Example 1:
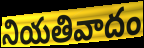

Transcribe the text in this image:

నియతివాదం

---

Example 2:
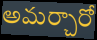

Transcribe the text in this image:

అమర్చారో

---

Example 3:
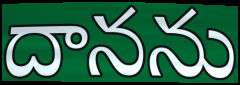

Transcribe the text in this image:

దానను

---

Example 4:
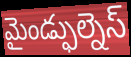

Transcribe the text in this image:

మైండ్ఫుల్నెస్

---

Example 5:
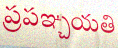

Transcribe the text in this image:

ప్రపఞ్చయతి